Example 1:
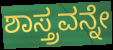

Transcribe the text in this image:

ಶಾಸ್ತ್ರವನ್ನೇ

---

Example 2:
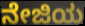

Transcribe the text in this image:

ನೇಜಿಯ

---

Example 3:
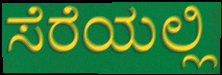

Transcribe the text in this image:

ಸೆರೆಯಲ್ಲಿ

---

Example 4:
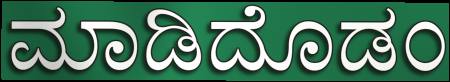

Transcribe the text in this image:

ಮಾಡಿದೊಡಂ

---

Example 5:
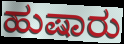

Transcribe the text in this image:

ಹುಷಾರು